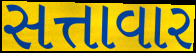
સત્તાવાર